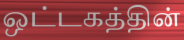
ஒட்டகத்தின்